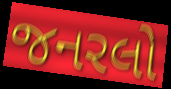
જનરલો